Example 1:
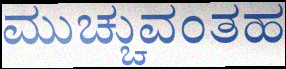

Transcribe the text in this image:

ಮುಚ್ಚುವಂತಹ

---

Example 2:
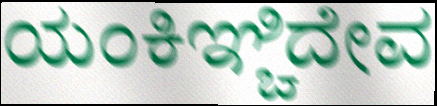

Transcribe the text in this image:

ಯಂಕಿಞ್ಚಿದೇವ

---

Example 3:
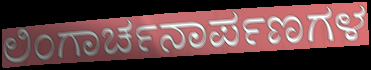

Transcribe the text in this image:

ಲಿಂಗಾರ್ಚನಾರ್ಪಣಗಳ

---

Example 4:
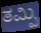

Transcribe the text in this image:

ತಮ್ಪಿ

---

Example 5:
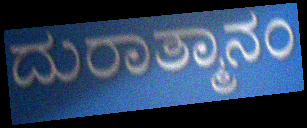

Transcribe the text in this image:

ದುರಾತ್ಮಾನಂ